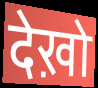
देख़ो